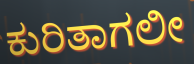
ಕುರಿತಾಗಲೀ